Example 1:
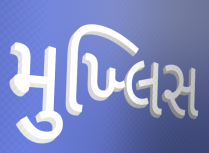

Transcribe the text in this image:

મુખ્લિસ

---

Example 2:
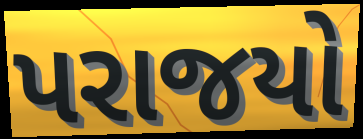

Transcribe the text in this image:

પરાજયો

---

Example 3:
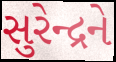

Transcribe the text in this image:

સુરેન્દ્રને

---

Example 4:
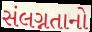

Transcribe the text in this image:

સંલગ્નતાનો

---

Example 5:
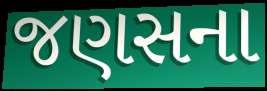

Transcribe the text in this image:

જણસના